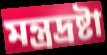
মন্ত্রদ্রষ্টা